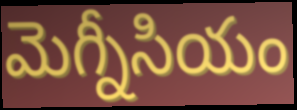
మెగ్నీసియం